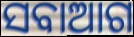
ସବାଆଗ